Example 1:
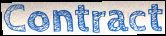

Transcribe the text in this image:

Contract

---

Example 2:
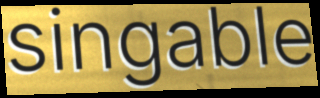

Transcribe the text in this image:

singable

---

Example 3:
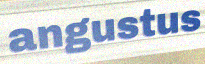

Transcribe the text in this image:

angustus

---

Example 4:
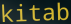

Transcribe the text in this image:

kitab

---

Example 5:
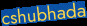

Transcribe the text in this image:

cshubhada